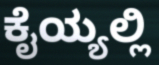
ಕೈಯ್ಯಲ್ಲಿ